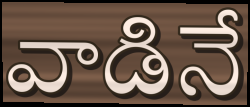
వాడినే